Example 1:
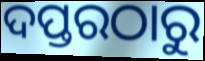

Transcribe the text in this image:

ଦପ୍ତରଠାରୁ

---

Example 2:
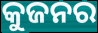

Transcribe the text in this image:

କୁଜନର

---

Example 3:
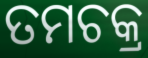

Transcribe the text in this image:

ତମଚକ୍ର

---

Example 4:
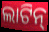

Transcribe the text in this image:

ଲାଟିନ୍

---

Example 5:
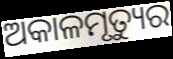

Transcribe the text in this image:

ଅକାଳମୃତ୍ୟୁର